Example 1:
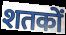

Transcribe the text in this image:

शतकों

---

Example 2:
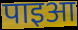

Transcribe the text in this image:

पाइआ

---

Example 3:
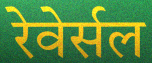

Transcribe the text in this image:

रेवेर्सल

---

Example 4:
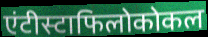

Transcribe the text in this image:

एंटीस्टाफिलोकोकल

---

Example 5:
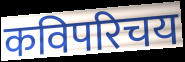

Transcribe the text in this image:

कविपरिचय